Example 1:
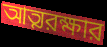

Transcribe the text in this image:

আত্মরক্ষার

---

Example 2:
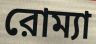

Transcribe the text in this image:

রোম্যা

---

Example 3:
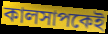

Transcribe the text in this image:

কালসাপকেই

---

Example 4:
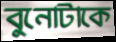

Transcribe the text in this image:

বুনোটাকে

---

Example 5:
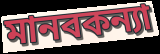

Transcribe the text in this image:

মানবকন্যা